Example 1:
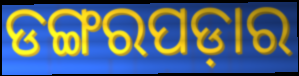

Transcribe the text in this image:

ଡଙ୍ଗରପଡ଼ାର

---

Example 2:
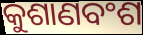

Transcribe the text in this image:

କୁଶାଣବଂଶ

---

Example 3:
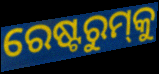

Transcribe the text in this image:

ରେଷ୍ଟରୁମ୍‌କୁ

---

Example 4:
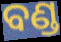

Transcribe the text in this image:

ବଣ୍ଡ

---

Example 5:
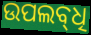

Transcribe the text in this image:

ଉପଲବ୍‍ଧି